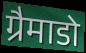
ग्रैमाडो